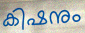
കിഷനും